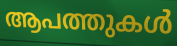
ആപത്തുകൾ